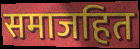
समाजहित